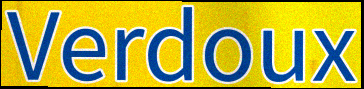
Verdoux